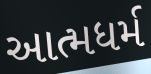
આત્મધર્મ